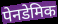
पेनडेमिक